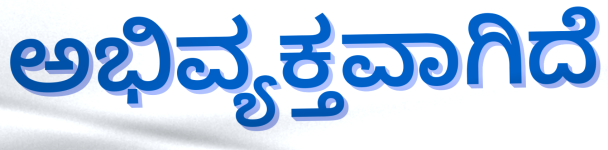
ಅಭಿವ್ಯಕ್ತವಾಗಿದೆ